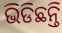
ଭିଡିଛନ୍ତି